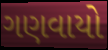
ગણવાયો